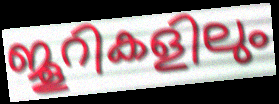
ജൂറികളിലും